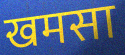
खमसा